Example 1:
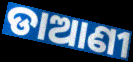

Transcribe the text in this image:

ଡାଆଣୀ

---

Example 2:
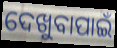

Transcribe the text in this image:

ଦେଖୁବାପାଇଁ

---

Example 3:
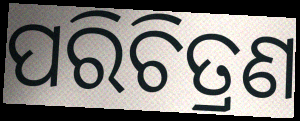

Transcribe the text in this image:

ପରିଚିତ୍ରଣ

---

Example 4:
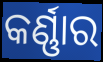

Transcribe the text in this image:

କର୍ଣ୍ଣାର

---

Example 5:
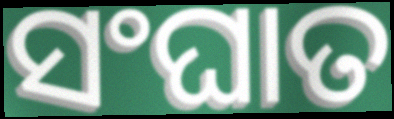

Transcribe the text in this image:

ସଂଘାତ